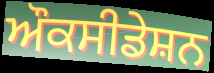
ਔਕਸੀਡੇਸ਼ਨ